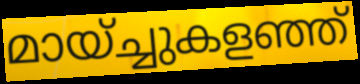
മായ്ച്ചുകളഞ്ഞ്